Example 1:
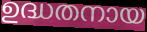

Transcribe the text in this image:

ഉദ്ധതനായ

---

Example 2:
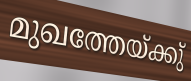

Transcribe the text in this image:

മുഖത്തേയ്ക്കു്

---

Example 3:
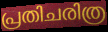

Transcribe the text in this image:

പ്രതിചരിത്ര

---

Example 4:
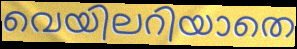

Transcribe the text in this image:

വെയിലറിയാതെ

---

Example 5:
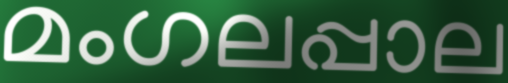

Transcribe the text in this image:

മംഗലപ്പാല